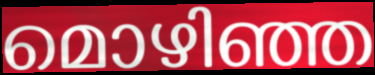
മൊഴിഞ്ഞ